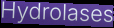
Hydrolases